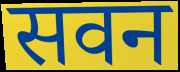
सवन